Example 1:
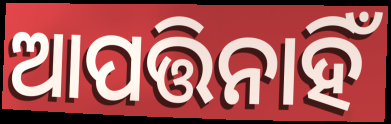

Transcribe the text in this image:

ଆପତ୍ତିନାହିଁ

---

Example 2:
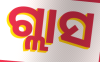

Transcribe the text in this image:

ଗ୍ଲାସ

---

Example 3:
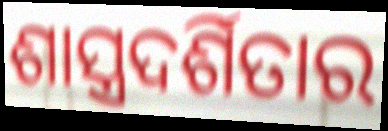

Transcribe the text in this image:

ଶାସ୍ତ୍ରଦର୍ଶିତାର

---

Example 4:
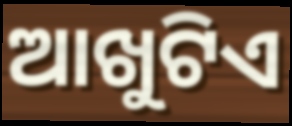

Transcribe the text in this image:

ଆଖୁଟିଏ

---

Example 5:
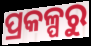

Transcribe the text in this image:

ପ୍ରକଳ୍ପରୁ